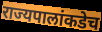
राज्यपालांकडेच